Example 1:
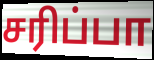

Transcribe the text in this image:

சரிப்பா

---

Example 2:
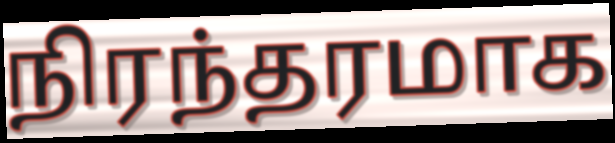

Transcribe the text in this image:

நிரந்தரமாக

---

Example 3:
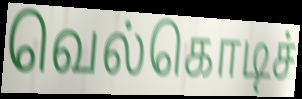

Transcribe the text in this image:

வெல்கொடிச்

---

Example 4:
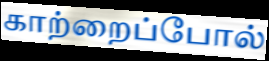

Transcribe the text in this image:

காற்றைப்போல்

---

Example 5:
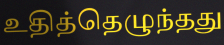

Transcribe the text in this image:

உதித்தெழுந்தது